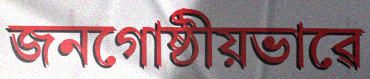
জনগোষ্ঠীয়ভাৱে